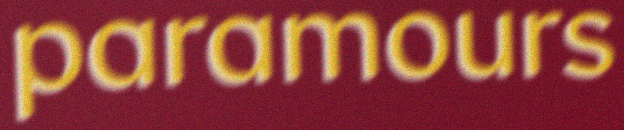
paramours